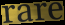
rare